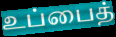
உப்பைத்